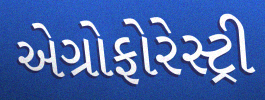
એગ્રોફોરેસ્ટ્રી